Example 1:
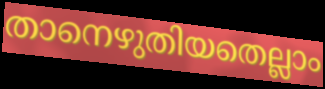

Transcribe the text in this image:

താനെഴുതിയതെല്ലാം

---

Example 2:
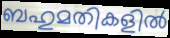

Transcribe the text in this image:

ബഹുമതികളിൽ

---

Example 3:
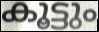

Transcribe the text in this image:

കൂട്ടും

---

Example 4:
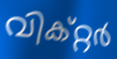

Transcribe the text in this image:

വിക്റ്റർ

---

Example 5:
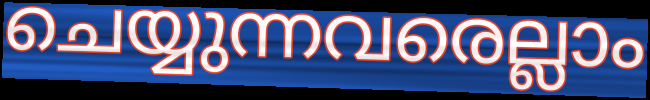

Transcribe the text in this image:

ചെയ്യുന്നവരെല്ലാം